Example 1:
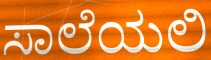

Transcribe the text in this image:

ಸಾಲೆಯಲಿ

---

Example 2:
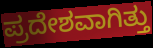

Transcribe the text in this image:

ಪ್ರದೇಶವಾಗಿತ್ತು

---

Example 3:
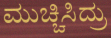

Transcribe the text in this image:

ಮುಚ್ಚಿಸಿದ್ರು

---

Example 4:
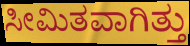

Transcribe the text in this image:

ಸೀಮಿತವಾಗಿತ್ತು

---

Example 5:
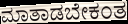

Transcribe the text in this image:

ಮಾತಾಡಬೇಕಂತ